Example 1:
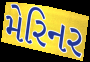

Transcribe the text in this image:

મેરિનર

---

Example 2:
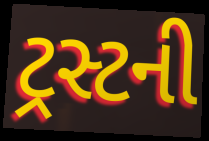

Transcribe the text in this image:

ટ્રસ્ટની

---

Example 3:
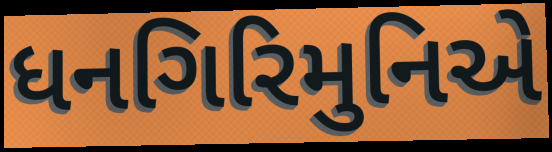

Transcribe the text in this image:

ધનગિરિમુનિએ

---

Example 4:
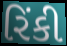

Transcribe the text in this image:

રિંકી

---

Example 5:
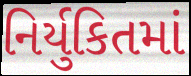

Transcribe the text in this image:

નિર્યુકિતમાં